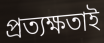
প্রত্যক্ষতাই